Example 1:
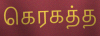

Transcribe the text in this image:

கெரகத்த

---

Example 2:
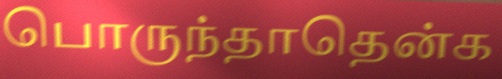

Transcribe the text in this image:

பொருந்தாதென்க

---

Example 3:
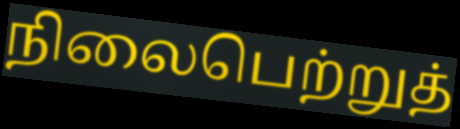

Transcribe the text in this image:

நிலைபெற்றுத்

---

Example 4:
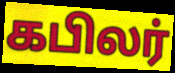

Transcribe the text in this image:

கபிலர்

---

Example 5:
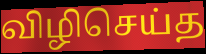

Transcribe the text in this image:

விழிசெய்த